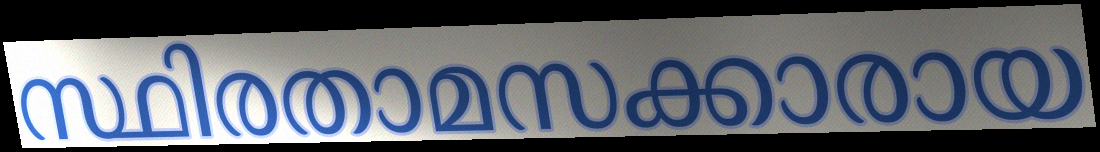
സ്ഥിരതാമസക്കാരായ